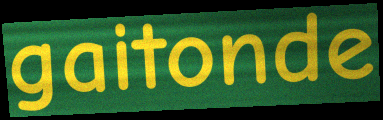
gaitonde